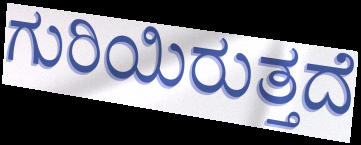
ಗುರಿಯಿರುತ್ತದೆ